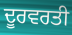
ਦੂਰਵਰਤੀ